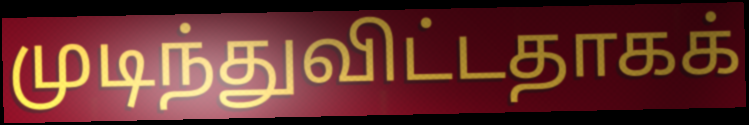
முடிந்துவிட்டதாகக்